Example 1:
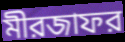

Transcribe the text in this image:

মীরজাফর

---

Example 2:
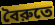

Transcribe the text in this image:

বৈরুতে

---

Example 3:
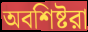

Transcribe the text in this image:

অবশিষ্টরা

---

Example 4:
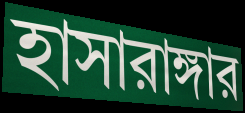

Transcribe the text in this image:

হাসারাঙ্গার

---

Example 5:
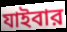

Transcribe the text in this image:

যাইবার